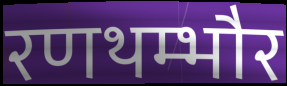
रणथम्भौर